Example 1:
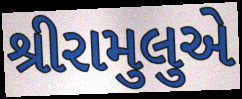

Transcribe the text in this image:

શ્રીરામુલુએ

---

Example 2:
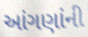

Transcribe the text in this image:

આંગણાંની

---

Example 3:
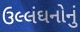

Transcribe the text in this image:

ઉલ્લંઘનોનું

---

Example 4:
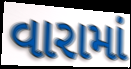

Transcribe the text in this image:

વારામાં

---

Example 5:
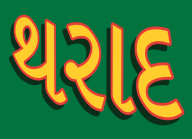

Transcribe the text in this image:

થરાદ